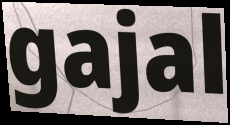
gajal